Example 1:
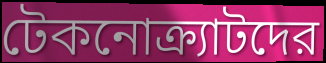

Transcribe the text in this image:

টেকনোক্র্যাটদের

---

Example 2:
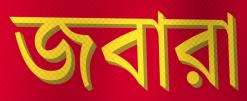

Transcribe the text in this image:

জবারা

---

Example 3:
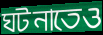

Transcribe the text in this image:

ঘটনাতেও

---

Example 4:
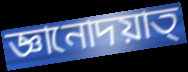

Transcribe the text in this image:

জ্ঞানোদয়াত্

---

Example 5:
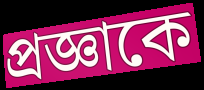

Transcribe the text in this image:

প্রজ্ঞাকে